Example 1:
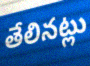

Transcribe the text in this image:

తేలినట్లు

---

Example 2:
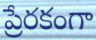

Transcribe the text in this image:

ప్రేరకంగా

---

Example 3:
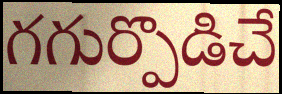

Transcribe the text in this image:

గగుర్పొడిచే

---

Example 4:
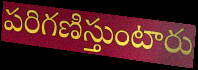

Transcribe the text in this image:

పరిగణిస్తుంటారు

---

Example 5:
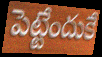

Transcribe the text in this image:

పెట్టేందుకే